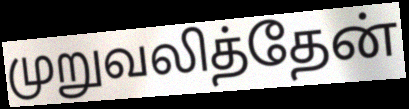
முறுவலித்தேன்